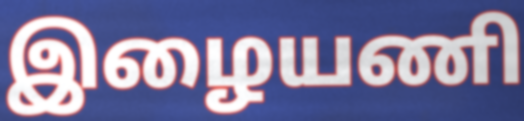
இழையணி